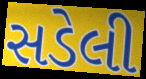
સડેલી